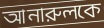
আনারুলকে